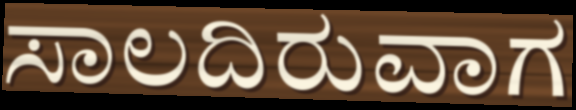
ಸಾಲದಿರುವಾಗ